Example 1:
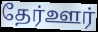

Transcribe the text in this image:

தேர்ஊர்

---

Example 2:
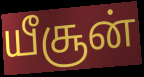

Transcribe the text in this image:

யீசூன்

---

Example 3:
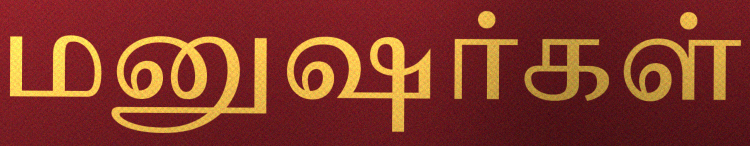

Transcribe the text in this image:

மனுஷர்கள்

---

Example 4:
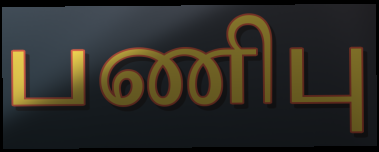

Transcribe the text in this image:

பணிபு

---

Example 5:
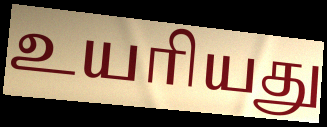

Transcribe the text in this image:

உயரியது